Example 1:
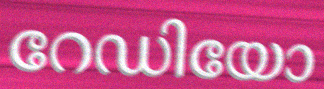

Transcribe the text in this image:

റേഡിയോ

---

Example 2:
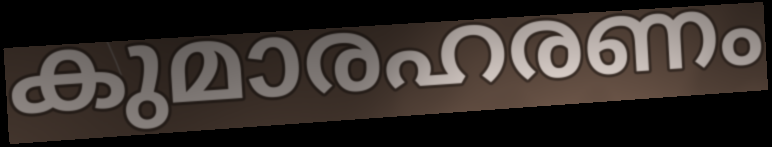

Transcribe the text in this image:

കുമാരഹരണം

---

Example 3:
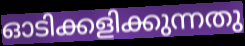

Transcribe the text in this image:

ഓടിക്കളിക്കുന്നതു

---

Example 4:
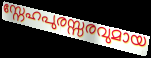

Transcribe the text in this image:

സ്നേഹപുരസ്സരവുമായ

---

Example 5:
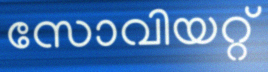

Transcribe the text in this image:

സോവിയറ്റ്